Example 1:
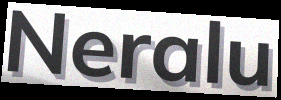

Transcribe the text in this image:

Neralu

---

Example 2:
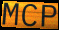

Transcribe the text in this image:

MCP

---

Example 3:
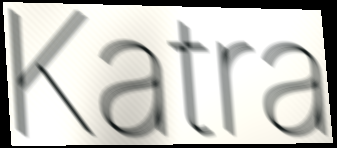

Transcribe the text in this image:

Katra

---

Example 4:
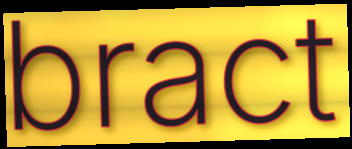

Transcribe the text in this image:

bract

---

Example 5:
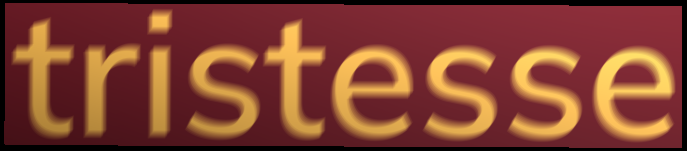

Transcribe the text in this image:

tristesse